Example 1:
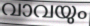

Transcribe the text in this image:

വാവയും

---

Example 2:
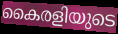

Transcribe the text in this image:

കൈരളിയുടെ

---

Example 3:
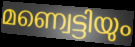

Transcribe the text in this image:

മണ്വെട്ടിയും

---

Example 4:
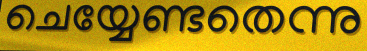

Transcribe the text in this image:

ചെയ്യേണ്ടതെന്നു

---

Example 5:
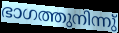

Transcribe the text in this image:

ഭാഗത്തുനിന്നു്